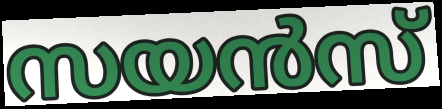
സയൻസ്